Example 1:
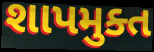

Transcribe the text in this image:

શાપમુક્ત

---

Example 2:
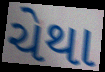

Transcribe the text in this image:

ચેથા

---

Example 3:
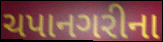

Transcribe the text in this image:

ચપાનગરીના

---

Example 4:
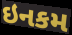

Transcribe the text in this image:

ઇનકમ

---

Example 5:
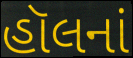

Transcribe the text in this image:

હૉલનાં